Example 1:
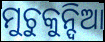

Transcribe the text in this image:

ମୁଚୁକୁନ୍ଦିଆ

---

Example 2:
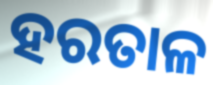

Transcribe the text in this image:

ହରତାଳ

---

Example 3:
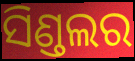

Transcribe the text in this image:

ସିଣ୍ଡଲର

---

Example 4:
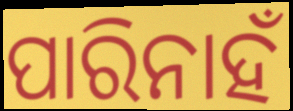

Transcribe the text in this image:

ପାରିନାହଁ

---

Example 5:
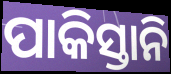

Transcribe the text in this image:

ପାକିସ୍ତାନି